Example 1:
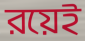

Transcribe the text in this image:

রয়েই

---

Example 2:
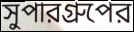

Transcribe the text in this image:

সুপারগ্রুপের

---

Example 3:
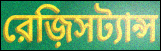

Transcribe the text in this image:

রেজ়িসট্যান্স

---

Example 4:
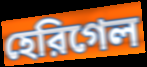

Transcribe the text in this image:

হেরিগেল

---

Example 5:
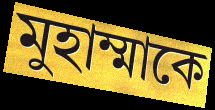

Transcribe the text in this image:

মুহাম্মাকে